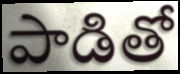
పాడితో